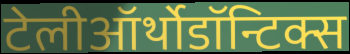
टेलीऑर्थोडॉन्टिक्स